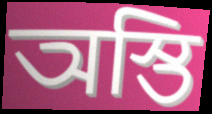
অস্তি